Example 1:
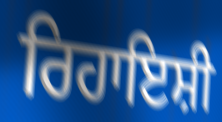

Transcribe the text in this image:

ਰਿਹਾਇਸ਼ੀ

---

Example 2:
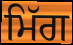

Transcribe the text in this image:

ਮਿੱਗ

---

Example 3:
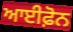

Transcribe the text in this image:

ਆਈਫ਼ੋਨ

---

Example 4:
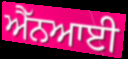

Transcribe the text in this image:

ਐੱਨਆਈ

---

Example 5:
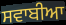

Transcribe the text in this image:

ਸਵਾਬੀਆ